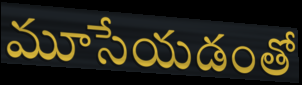
మూసేయడంతో